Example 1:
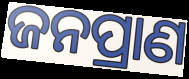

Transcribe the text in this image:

ଜନପ୍ରାଣ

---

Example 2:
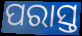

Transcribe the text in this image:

ପରାସ୍ତ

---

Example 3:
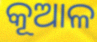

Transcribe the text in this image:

କୂଆଳ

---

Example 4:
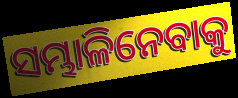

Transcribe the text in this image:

ସମ୍ଭାଳିନେବାକୁ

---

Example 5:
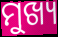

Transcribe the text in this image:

ମୁଖ୍ୟ